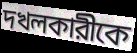
দখলকারীকে